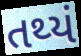
તથ્યં